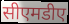
सीएमडीए